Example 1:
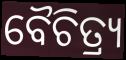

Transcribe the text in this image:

ବୈଚିତ୍ର୍ୟ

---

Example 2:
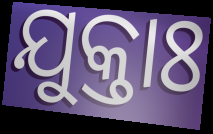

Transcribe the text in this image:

ଯୁକ୍ତାଃ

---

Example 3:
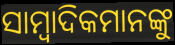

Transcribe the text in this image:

ସାମ୍ବାଦିକମାନଙ୍କୁ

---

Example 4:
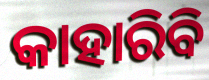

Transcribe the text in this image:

କାହାରିବି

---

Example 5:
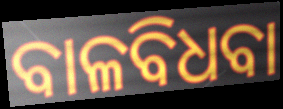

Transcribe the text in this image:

ବାଳବିଧବା